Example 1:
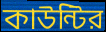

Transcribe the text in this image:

কাউন্টির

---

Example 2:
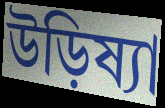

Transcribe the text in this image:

উড়িষ্যা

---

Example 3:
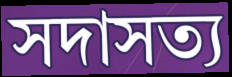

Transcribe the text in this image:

সদাসত্য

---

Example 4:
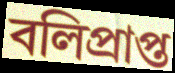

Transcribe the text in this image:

বলিপ্রাপ্ত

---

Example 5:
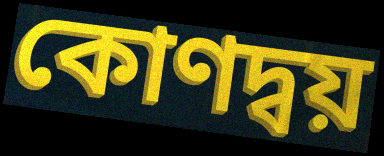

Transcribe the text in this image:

কোণদ্বয়